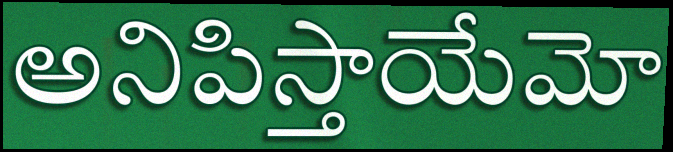
అనిపిస్తాయేమో